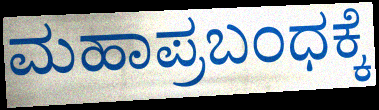
ಮಹಾಪ್ರಬಂಧಕ್ಕೆ